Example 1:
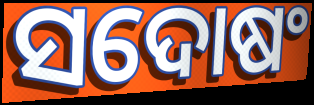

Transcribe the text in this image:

ସଦୋଷଂ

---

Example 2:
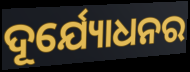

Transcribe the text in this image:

ଦୂର୍ଯ୍ୟୋଧନର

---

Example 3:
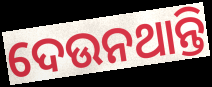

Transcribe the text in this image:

ଦେଉନଥାନ୍ତି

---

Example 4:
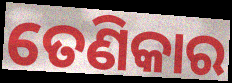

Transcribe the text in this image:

ତେଣିକାର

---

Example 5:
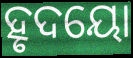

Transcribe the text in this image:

ହୃଦୟୋ